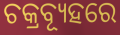
ଚକ୍ରବ୍ୟୂହରେ